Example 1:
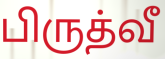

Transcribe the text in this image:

பிருத்வீ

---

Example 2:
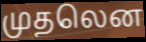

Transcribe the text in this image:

முதலென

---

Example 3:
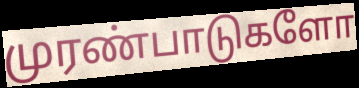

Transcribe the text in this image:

முரண்பாடுகளோ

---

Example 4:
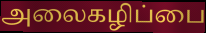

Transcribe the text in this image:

அலைகழிப்பை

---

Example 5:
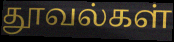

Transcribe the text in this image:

தூவல்கள்